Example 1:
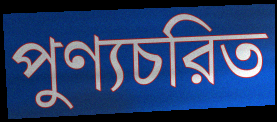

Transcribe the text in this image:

পুণ্যচরিত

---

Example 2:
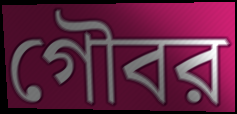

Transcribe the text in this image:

গৌবর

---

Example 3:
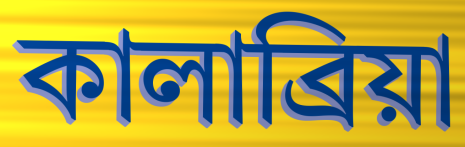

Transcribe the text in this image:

কালাব্রিয়া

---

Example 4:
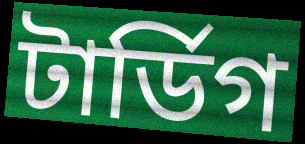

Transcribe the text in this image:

টার্ডিগ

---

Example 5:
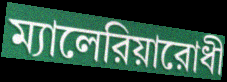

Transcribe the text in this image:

ম্যালেরিয়ারোধী